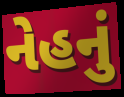
નેહનું